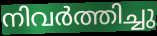
നിവർത്തിച്ചു